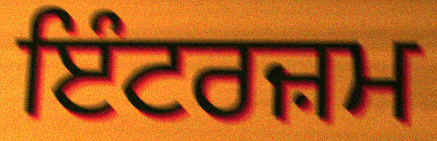
ਇੰਟਰਜ਼ਮ